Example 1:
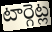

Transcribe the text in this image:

టార్గెట్ల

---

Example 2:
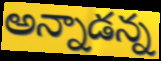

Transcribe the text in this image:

అన్నాడన్న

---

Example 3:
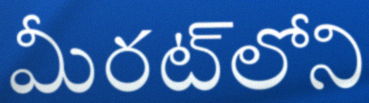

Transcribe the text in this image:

మీరట్‌లోని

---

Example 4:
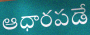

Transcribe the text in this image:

ఆధారపడే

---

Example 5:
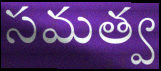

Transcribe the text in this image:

సమత్వ